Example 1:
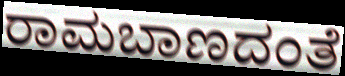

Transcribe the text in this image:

ರಾಮಬಾಣದಂತೆ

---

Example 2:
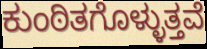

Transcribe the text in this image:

ಕುಂಠಿತಗೊಳ್ಳುತ್ತವೆ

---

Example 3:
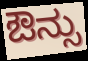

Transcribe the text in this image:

ಔನ್ಸು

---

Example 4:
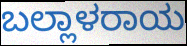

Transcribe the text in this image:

ಬಲ್ಲಾಳರಾಯ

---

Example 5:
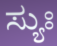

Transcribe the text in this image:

ಸ್ಯುಃ